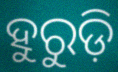
ହୁରୁଡ଼ି